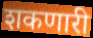
शकणारी